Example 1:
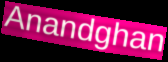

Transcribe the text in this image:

Anandghan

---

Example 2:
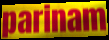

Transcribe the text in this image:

parinam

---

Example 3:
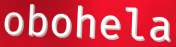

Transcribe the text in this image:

obohela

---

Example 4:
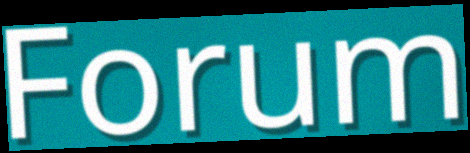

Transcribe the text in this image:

Forum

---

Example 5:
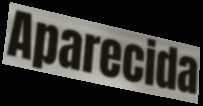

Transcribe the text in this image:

Aparecida